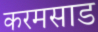
करमसाड